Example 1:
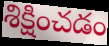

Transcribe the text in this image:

శిక్షించడం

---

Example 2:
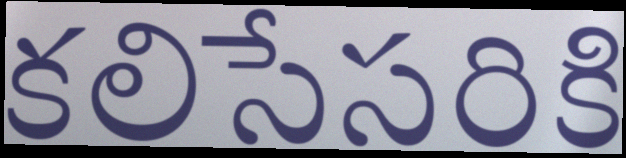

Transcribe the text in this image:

కలిసేసరికి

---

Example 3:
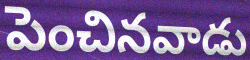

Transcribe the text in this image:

పెంచినవాడు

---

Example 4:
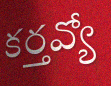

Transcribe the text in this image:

కర్తవ్యో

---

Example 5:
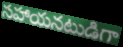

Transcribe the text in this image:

సహాయనటుడిగా